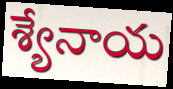
శ్యేనాయ